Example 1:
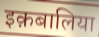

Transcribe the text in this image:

इक़बालिया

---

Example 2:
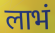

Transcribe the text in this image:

लाभं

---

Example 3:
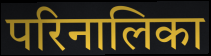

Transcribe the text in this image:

परिनालिका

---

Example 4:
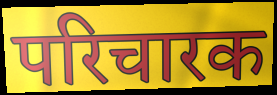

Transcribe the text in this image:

परिचारक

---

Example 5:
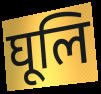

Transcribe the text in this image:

घूलि